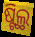
ଷ୍ଟିଲ୍ଥ